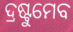
ଦ୍ରଷ୍ଟୁମେବ